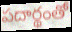
పదార్థంతో